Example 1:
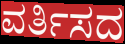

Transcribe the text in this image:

ವರ್ತಿಸದ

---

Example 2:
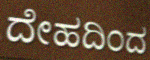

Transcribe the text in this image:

ದೇಹದಿಂದ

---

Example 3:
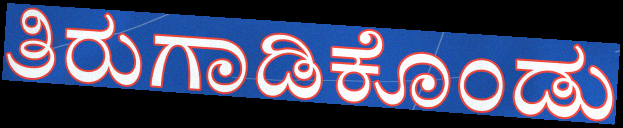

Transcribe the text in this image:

ತಿರುಗಾಡಿಕೊಂಡು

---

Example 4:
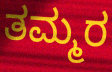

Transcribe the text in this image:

ತಮ್ಮರ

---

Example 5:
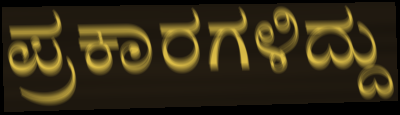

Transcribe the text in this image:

ಪ್ರಕಾರಗಳಿದ್ದು